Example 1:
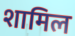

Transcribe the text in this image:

शामिल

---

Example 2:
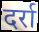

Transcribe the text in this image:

दर्रा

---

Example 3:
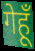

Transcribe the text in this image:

गेहूँ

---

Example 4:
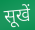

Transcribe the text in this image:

सूखें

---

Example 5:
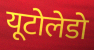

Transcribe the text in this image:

यूटोलेडो